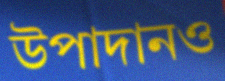
উপাদানও